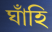
ঘাঁহি